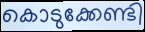
കൊടുക്കേണ്ടി